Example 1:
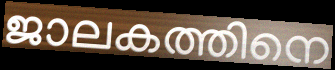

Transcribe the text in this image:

ജാലകത്തിനെ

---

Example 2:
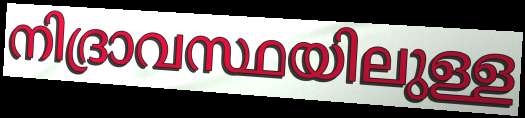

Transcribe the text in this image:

നിദ്രാവസ്ഥയിലുള്ള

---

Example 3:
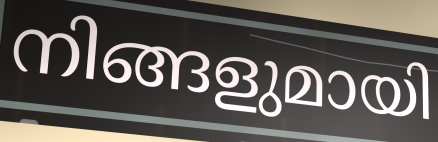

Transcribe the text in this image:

നിങ്ങളുമായി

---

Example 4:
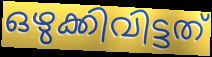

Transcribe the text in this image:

ഒഴുക്കിവിട്ടത്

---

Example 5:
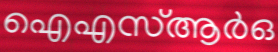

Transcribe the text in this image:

ഐഎസ്ആർഒ